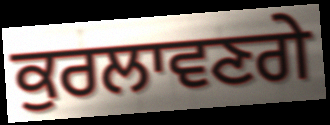
ਕੁਰਲਾਵਣਗੇ